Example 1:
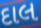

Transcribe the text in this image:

દાલ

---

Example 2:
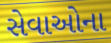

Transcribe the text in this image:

સેવાઓના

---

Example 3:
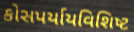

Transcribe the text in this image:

કોસપર્યાયવિશિષ્ટ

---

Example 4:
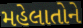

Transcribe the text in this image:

મહેલાતોને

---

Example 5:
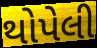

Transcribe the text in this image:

થોપેલી